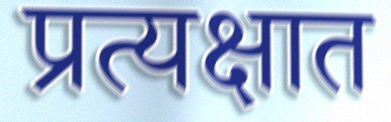
प्रत्यक्षात